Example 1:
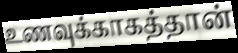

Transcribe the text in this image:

உணவுக்காகத்தான்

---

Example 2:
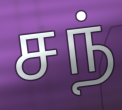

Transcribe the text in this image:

சந்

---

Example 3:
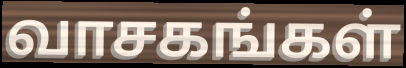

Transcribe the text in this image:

வாசகங்கள்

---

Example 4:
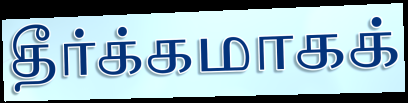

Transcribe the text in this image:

தீர்க்கமாகக்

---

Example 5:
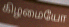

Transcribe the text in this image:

கிழமையோ